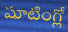
షూటింగ్లో